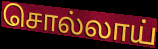
சொல்லாய்